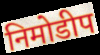
निमोडीप